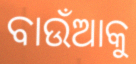
ବାଉଁଆକୁ